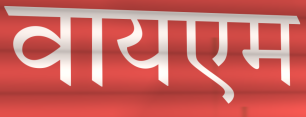
वायएम